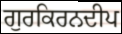
ਗੁਰਕਿਰਨਦੀਪ